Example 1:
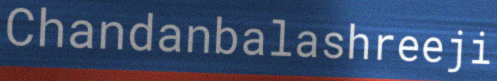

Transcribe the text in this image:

Chandanbalashreeji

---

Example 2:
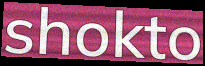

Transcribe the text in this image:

shokto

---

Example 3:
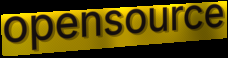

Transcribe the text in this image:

opensource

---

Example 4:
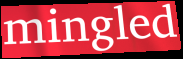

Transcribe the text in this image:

mingled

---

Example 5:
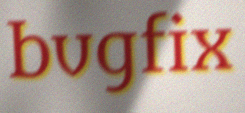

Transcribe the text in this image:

bugfix